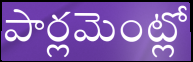
పార్లమెంట్లో